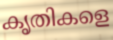
കൃതികളെ